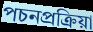
পচনপ্রক্রিয়া